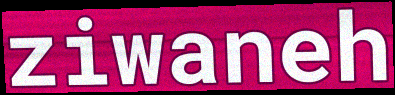
ziwaneh